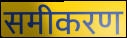
समीकरण